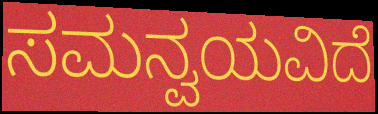
ಸಮನ್ವಯವಿದೆ